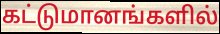
கட்டுமானங்களில்